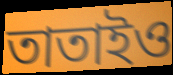
তাতাইও